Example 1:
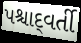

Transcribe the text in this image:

પશ્ચાદ્‌વર્તી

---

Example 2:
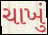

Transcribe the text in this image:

ચાખું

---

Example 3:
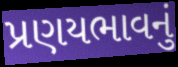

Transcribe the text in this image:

પ્રણયભાવનું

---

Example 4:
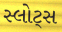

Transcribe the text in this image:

સ્લોટ્સ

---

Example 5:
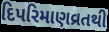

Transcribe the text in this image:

દિપરિમાણવ્રતથી